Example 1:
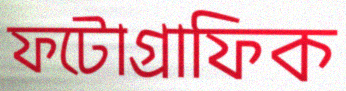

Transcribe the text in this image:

ফটোগ্রাফিক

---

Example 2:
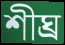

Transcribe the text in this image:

শীঘ্র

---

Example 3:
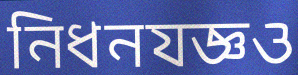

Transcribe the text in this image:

নিধনযজ্ঞও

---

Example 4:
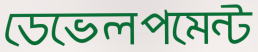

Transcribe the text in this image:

ডেভেলপমেন্ট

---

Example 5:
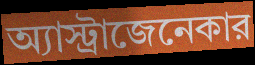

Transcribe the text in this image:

অ্যাস্ট্রাজেনেকার